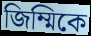
জিম্মিকে